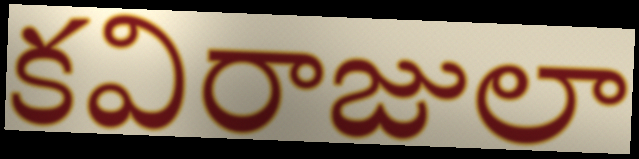
కవిరాజులా